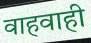
वाहवाही